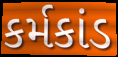
કર્મકાંડ